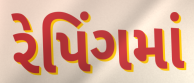
રેપિંગમાં